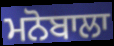
ਮਨੋਬਾਲਾ